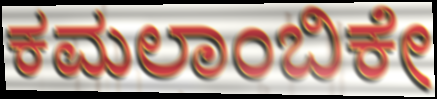
ಕಮಲಾಂಬಿಕೇ